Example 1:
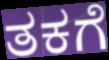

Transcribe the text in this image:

ತಕಗೆ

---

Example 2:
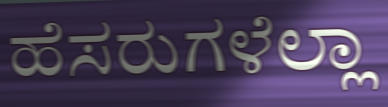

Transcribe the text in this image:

ಹೆಸರುಗಳೆಲ್ಲಾ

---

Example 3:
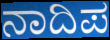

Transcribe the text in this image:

ನಾದಿಪ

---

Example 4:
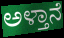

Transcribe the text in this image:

ಅಳ್ತಾನೆ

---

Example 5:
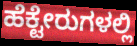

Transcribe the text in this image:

ಹೆಕ್ಟೇರುಗಳಲ್ಲಿ